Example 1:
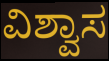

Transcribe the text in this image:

ವಿಶ್ವಾಸ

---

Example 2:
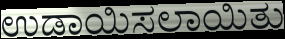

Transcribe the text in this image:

ಉಡಾಯಿಸಲಾಯಿತು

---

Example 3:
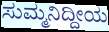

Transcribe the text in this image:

ಸುಮ್ಮನಿದ್ದೀಯ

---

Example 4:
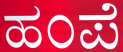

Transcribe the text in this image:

ಹಂಪೆ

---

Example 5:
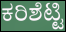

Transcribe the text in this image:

ಕರಿಶೆಟ್ಟಿ